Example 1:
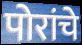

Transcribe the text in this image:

पोरांचे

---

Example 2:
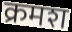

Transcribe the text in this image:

क्रमश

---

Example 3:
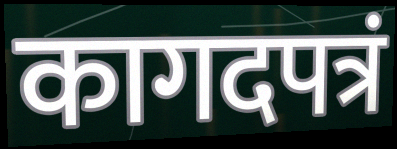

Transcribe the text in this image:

कागदपत्रं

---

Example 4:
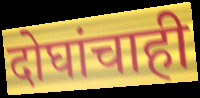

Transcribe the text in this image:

दोघांचाही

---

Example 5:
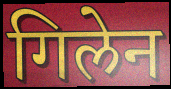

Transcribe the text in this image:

गिलेन